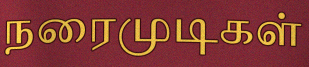
நரைமுடிகள்